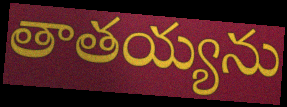
తాతయ్యను